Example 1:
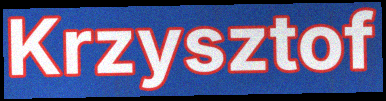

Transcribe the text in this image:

Krzysztof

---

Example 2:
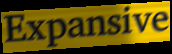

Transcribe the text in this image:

Expansive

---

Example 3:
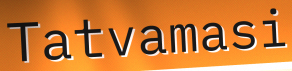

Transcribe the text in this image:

Tatvamasi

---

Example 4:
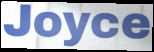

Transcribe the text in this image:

Joyce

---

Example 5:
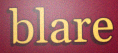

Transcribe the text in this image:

blare